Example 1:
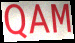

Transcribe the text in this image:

QAM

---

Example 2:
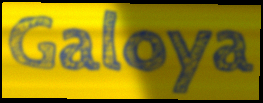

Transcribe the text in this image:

Galoya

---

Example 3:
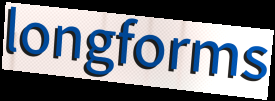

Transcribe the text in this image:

longforms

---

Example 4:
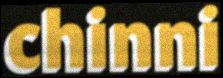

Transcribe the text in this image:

chinni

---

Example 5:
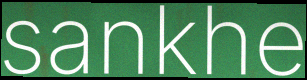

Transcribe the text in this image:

sankhe